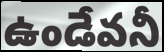
ఉండేవనీ